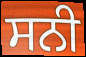
ਸਨੀ